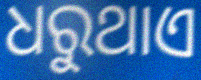
ଧରୁଥାଏ